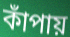
কাঁপায়